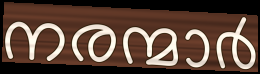
നരന്മാർ